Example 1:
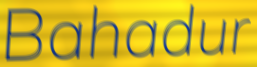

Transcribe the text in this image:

Bahadur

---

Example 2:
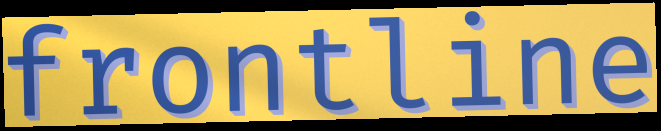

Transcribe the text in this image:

frontline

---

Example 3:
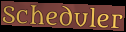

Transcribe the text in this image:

Scheduler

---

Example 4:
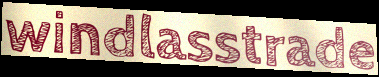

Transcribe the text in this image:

windlasstrade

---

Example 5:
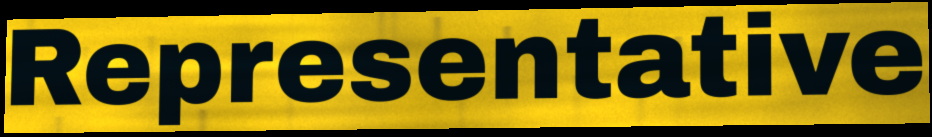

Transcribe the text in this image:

Representative